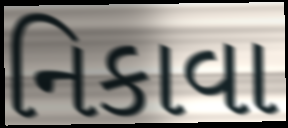
નિકાવા